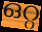
ഒറ്റ